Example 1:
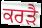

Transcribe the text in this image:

ਕਰੜੈ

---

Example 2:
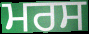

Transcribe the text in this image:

ਮਰਸ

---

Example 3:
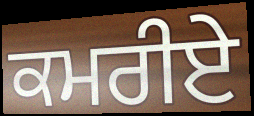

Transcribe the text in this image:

ਕਮਰੀਏ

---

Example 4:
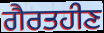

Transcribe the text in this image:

ਗੈਰਤਹੀਣ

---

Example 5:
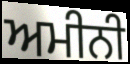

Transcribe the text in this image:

ਅਮੀਨੀ